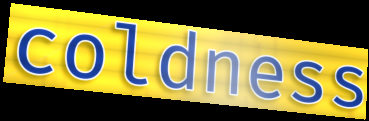
coldness